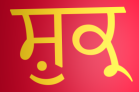
ਸ਼ੁਕ੍ਰ